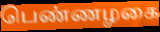
பெண்ணழகை